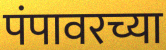
पंपावरच्या